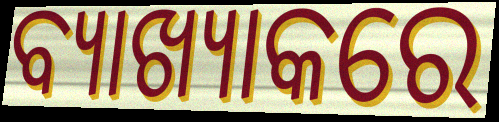
ବ୍ୟାଖ୍ୟାକରେ